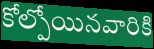
కోల్పోయినవారికి